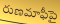
రుణమాఫీపై